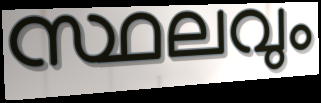
സ്ഥലവും